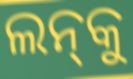
ଲନ୍‌କୁ